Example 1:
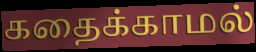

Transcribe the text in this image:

கதைக்காமல்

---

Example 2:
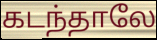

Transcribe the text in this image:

கடந்தாலே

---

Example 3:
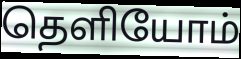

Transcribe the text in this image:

தெளியோம்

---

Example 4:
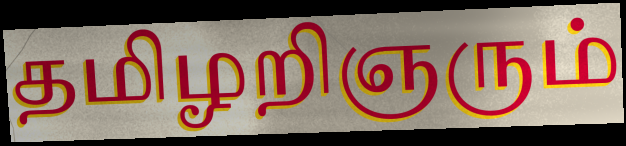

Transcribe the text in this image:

தமிழறிஞரும்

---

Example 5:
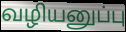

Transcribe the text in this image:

வழியனுப்பு